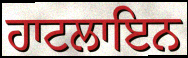
ਹਾਟਲਾਇਨ